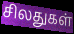
சிலதுகள்